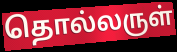
தொல்லருள்